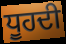
ਧੂਹਦੀ